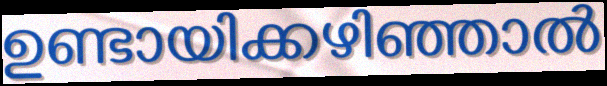
ഉണ്ടായിക്കഴിഞ്ഞാൽ